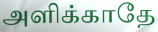
அளிக்காதே